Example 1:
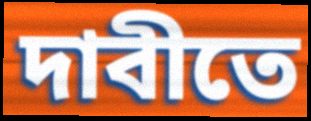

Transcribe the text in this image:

দাবীতে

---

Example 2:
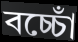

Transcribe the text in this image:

বচ্চোঁ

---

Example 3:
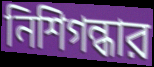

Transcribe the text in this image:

নিশিগন্ধার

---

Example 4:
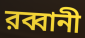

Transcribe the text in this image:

রব্বানী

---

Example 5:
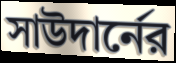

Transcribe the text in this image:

সাউদার্নের